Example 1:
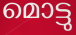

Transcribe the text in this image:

മൊട്ടു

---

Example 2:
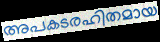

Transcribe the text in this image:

അപകടരഹിതമായ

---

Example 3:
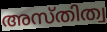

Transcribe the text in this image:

അസ്തിത്വ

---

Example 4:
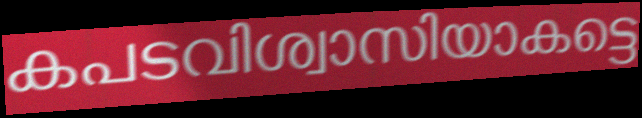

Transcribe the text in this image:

കപടവിശ്വാസിയാകട്ടെ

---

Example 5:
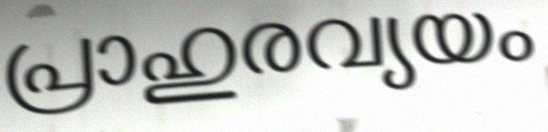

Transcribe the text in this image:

പ്രാഹുരവ്യയം